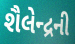
શૈલેન્દ્રની